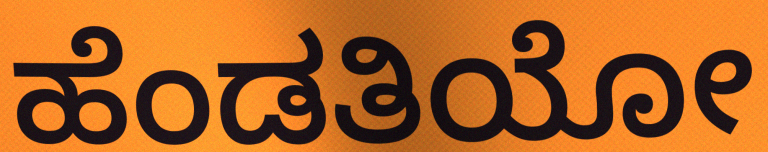
ಹೆಂಡತಿಯೋ